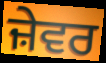
ਜ਼ੇਵਰ